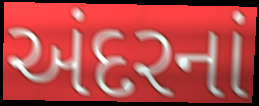
અંદરનાં